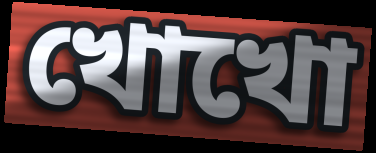
খোখো